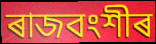
ৰাজবংশীৰ